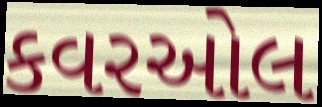
કવરઓલ